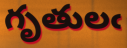
గృతులఁ